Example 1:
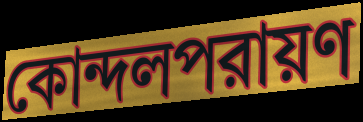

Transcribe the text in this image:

কোন্দলপরায়ণ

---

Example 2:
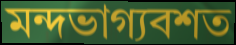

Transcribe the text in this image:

মন্দভাগ্যবশত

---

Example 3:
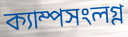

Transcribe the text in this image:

ক্যাম্পসংলগ্ন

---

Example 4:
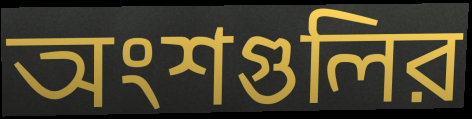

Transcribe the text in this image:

অংশগুলির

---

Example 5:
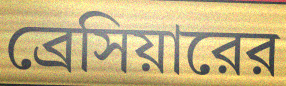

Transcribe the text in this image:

ব্রেসিয়ারের